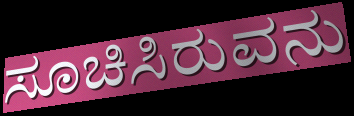
ಸೂಚಿಸಿರುವನು